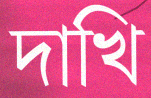
দাখি